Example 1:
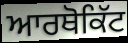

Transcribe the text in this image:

ਆਰਥੋਕਿੱਟ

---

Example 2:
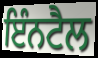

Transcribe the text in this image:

ਇੰਨਟੈਲ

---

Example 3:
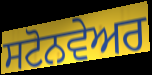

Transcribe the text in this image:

ਸਟੋਨਵੇਅਰ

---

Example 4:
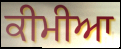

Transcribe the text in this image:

ਕੀਮੀਆ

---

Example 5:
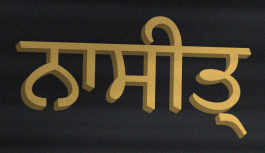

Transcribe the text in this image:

ਨਾਸੀਤ੍